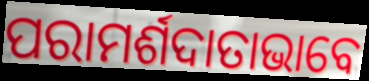
ପରାମର୍ଶଦାତାଭାବେ